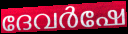
ദേവർഷേ